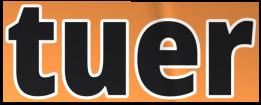
tuer